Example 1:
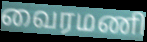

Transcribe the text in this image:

வைரமணி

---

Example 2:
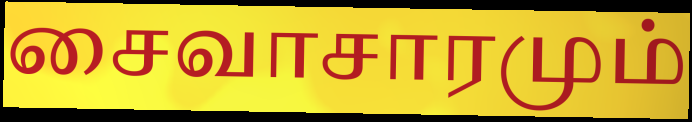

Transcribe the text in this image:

சைவாசாரமும்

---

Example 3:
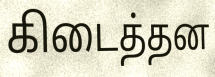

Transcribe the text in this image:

கிடைத்தன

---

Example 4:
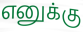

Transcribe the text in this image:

எனுக்கு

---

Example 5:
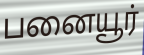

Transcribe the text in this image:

பனையூர்